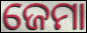
ଜେମା